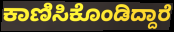
ಕಾಣಿಸಿಕೊಂಡಿದ್ದಾರೆ